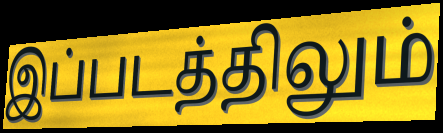
இப்படத்திலும்